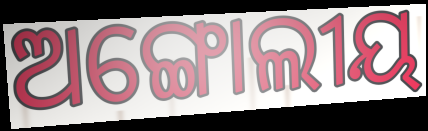
ଅଙ୍ଗୋଲୀୟ